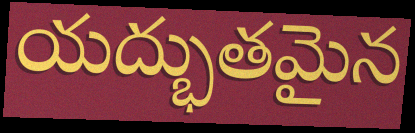
యద్భుతమైన